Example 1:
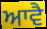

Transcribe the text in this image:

ਆਵੈ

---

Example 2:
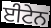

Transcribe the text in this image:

ਈਟੇਨ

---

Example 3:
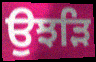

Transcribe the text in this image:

ਉਝੜਿ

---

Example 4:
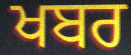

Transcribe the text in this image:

ਖਬਰ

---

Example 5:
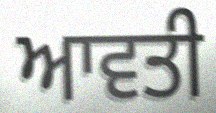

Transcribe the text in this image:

ਆਵਤੀ